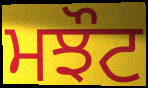
ਮਝੌਟ